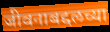
जीवनाबद्दलच्या